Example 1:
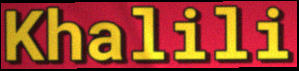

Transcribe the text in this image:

Khalili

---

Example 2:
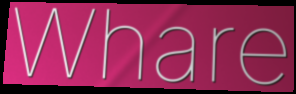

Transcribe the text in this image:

Whare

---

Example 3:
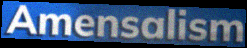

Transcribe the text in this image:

Amensalism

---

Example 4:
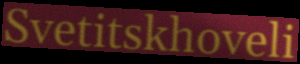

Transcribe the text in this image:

Svetitskhoveli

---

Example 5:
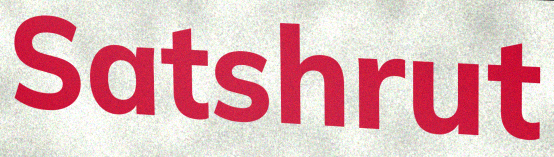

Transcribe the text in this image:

Satshrut